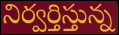
నిర్వర్తిస్తున్న